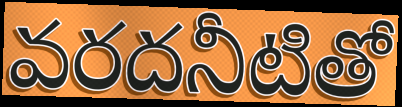
వరదనీటితో